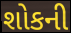
શોકની